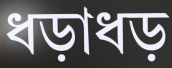
ধড়াধড়